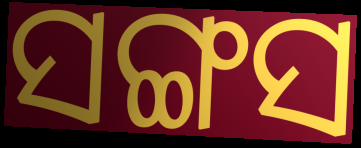
ସଙ୍ଗସ